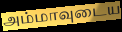
அம்மாவுடைய